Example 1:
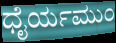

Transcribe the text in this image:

ಧೈರ್ಯಮುಂ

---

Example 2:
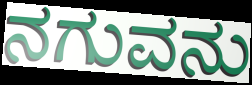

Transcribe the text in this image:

ನಗುವನು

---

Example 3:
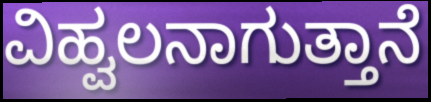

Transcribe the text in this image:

ವಿಹ್ವಲನಾಗುತ್ತಾನೆ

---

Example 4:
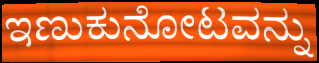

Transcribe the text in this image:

ಇಣುಕುನೋಟವನ್ನು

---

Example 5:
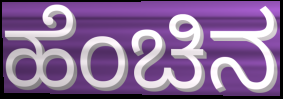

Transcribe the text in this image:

ಹೆಂಚಿನ